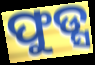
ଫୁଡ୍ସ